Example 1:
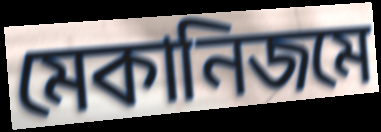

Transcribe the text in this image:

মেকানিজমে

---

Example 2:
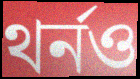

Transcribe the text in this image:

থর্নও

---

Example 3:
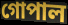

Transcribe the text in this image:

গোপাল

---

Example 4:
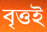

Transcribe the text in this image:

বৃত্তই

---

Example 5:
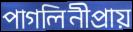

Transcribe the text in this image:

পাগলিনীপ্রায়